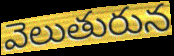
వెలుతురున